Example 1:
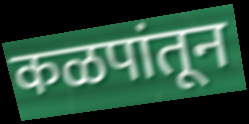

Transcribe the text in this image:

कळपांतून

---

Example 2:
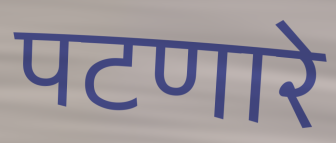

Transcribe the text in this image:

पटणारे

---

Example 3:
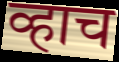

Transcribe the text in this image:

व्हाच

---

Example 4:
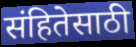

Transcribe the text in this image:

संहितेसाठी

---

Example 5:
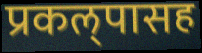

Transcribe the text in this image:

प्रकल्पासह